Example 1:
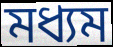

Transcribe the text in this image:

মধ্যম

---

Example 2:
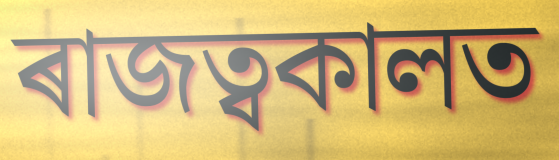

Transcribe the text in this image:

ৰাজত্বকালত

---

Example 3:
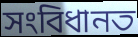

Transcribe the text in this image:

সংবিধানত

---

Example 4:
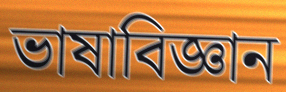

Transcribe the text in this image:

ভাষাবিজ্ঞান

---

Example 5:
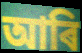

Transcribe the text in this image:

আৰি